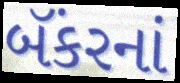
બૅંકરનાં